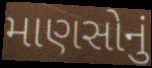
માણસોનું